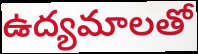
ఉద్యమాలతో